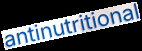
antinutritional